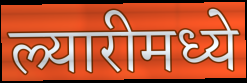
ल्यारीमध्ये